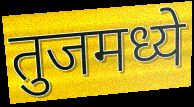
तुजमध्ये